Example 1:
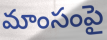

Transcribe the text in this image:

మాంసంపై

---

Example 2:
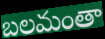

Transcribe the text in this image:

బలమంతా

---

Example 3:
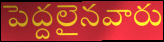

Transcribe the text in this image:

పెద్దలైనవారు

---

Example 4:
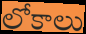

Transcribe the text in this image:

లోకాలు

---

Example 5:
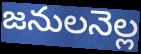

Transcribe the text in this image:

జనులనెల్ల